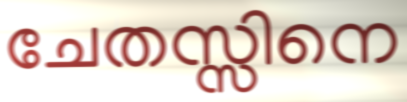
ചേതസ്സിനെ